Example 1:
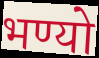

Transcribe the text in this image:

भण्यो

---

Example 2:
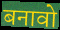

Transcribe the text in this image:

बनावो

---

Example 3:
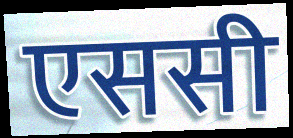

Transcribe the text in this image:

एससी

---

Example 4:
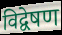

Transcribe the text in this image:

विद्वेषण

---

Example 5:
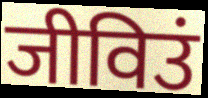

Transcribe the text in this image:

जीविउं